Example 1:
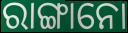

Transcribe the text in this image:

ରାଙ୍ଗାନୋ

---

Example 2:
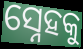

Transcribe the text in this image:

ସ୍ନେହକୁ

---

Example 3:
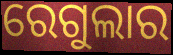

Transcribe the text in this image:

ରେଗୁଲାର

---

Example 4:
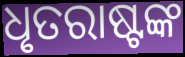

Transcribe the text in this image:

ଧୃତରାଷ୍ଟଙ୍କ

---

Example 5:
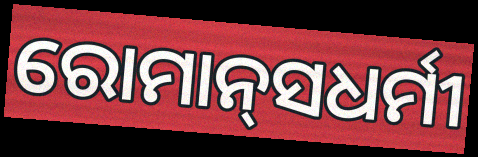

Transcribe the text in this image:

ରୋମାନ୍‌ସଧର୍ମୀ